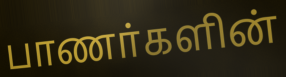
பாணர்களின்